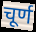
चूर्ण